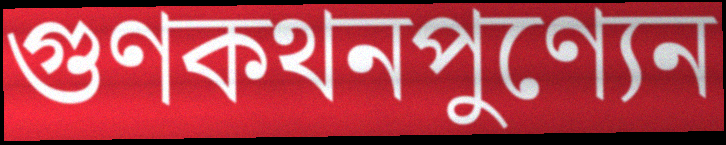
গুণকথনপুণ্যেন